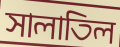
সালাতিল